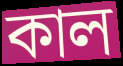
কাল